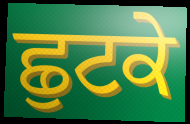
ਛੁਟਕੇ